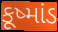
કૂષ્માંડ